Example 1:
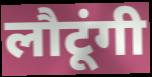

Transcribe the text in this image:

लौटूंगी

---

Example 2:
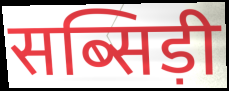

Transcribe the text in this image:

सब्सिड़ी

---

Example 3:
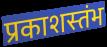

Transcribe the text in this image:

प्रकाशस्तंभ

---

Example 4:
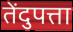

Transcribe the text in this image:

तेंदुपत्ता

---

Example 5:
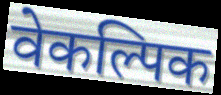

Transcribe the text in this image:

वेकल्पिक